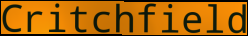
Critchfield